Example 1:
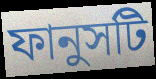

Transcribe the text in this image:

ফানুসটি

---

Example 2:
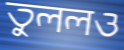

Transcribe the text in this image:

তুললও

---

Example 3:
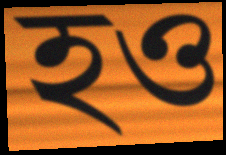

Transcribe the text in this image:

হও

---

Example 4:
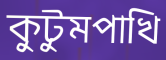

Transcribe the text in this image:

কুটুমপাখি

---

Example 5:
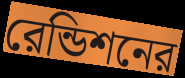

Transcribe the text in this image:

রেন্ডিশনের